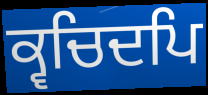
ਕ੍ਵਚਿਦਪਿ